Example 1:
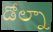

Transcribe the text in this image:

డోల్నా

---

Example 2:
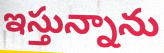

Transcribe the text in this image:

ఇస్తున్నాను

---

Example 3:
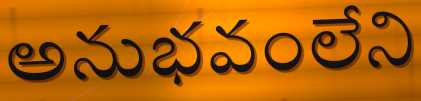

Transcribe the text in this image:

అనుభవంలేని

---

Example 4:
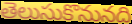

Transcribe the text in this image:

తెలుసుకొనునది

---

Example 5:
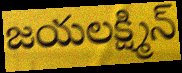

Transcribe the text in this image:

జయలక్ష్మిన్